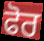
ਫੋਰ